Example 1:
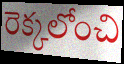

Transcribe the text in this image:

రెక్కలోంచి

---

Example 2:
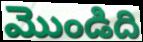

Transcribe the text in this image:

మొండిది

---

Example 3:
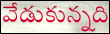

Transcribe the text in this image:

వేడుకున్నది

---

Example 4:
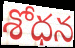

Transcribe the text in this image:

శోధన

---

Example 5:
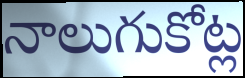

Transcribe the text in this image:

నాలుగుకోట్ల